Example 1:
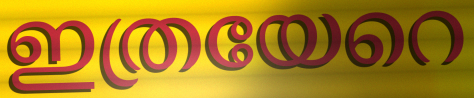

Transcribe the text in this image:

ഇത്രയേറെ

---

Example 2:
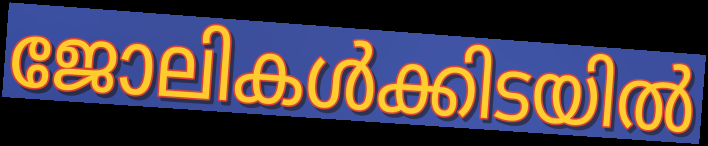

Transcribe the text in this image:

ജോലികൾക്കിടയിൽ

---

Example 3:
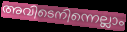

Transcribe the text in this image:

അവിടെനിന്നെല്ലാം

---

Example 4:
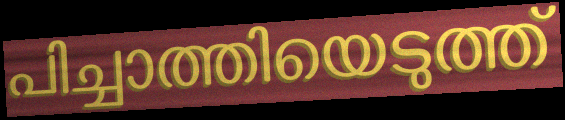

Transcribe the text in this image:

പിച്ചാത്തിയെടുത്ത്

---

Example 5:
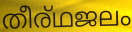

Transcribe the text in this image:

തീര്ഥജലം